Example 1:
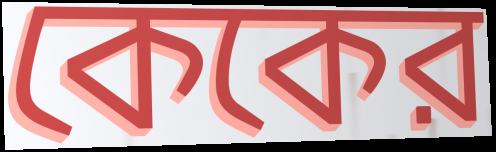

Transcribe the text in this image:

কেকের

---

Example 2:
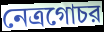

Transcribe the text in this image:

নেত্রগোচর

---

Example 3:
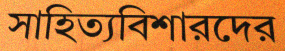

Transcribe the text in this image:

সাহিত্যবিশারদের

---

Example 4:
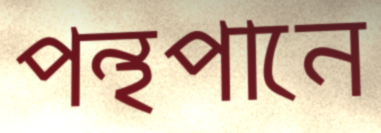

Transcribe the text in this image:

পন্থপানে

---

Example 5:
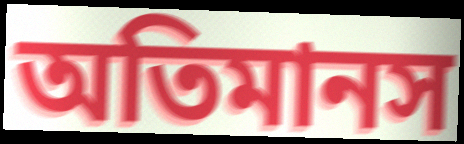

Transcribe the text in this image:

অতিমানস